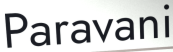
Paravani